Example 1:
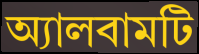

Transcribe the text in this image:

অ্যালবামটি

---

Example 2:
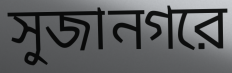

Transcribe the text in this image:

সুজানগরে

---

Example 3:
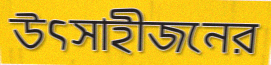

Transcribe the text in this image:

উৎসাহীজনের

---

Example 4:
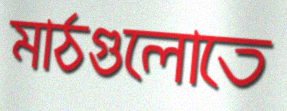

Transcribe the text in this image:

মাঠগুলোতে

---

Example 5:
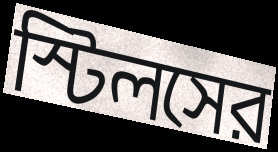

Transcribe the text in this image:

স্টিলসের